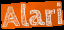
Alari